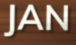
JAN